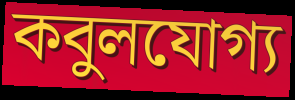
কবুলযোগ্য